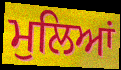
ਮੁਲਿਆਂ